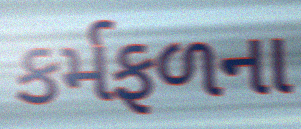
કર્મફળના